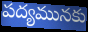
పద్యమునకు